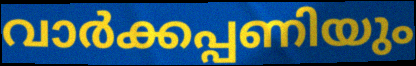
വാർക്കപ്പണിയും